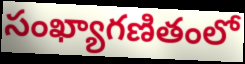
సంఖ్యాగణితంలో